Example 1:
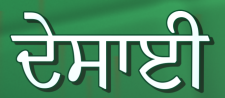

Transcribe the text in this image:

ਦੇਸਾਈ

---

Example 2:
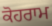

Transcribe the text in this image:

ਕੋਹਰਾਮ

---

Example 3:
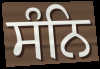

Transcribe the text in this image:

ਸੰਨਿ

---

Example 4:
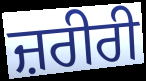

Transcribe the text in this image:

ਜ਼ਰੀਰੀ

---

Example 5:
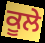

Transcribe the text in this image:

ਕੂਲੇ